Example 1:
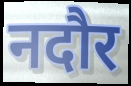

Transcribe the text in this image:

नदौर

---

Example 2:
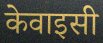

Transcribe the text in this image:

केवाइसी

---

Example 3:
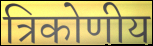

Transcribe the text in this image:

त्रिकोणीय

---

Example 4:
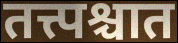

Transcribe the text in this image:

तत्त्पश्चात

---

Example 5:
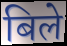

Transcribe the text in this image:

बिले